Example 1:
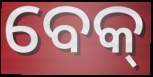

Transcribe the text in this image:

ବେକ୍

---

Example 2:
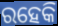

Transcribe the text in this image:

ରହେକି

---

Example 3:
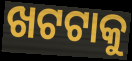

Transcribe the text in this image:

ଖଟଟାକୁ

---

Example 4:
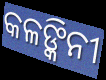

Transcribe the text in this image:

କଳଙ୍କିନୀ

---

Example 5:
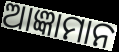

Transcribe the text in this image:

ଆଜ୍ଞାମାନ